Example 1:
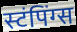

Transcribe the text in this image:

स्टंपिंग्स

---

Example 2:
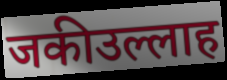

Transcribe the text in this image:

जकीउल्लाह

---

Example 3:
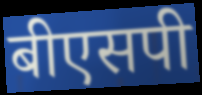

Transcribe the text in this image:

बीएसपी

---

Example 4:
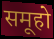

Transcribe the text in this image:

समूहो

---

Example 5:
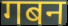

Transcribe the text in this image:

गबन